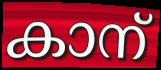
കാന്